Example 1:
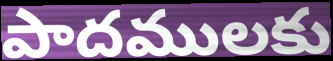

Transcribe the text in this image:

పాదములకు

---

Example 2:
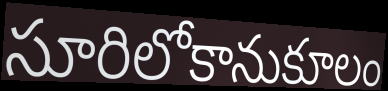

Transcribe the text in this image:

సూరిలోకానుకూలం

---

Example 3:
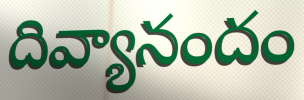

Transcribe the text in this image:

దివ్యానందం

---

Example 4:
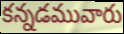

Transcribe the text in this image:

కన్నడమువారు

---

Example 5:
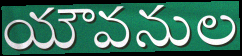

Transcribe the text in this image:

యౌవనుల